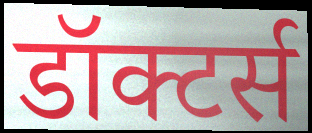
डॉक्टर्स